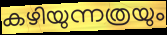
കഴിയുന്നത്രയും